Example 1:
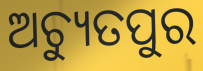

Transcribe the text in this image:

ଅଚ୍ୟୁତପୁର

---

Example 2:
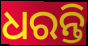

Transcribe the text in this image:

ଧରନ୍ତି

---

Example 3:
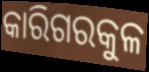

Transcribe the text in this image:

କାରିଗରକୁଳ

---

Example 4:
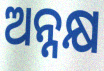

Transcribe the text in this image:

ଅନ୍ନକ୍ଷ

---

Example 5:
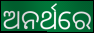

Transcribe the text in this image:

ଅନର୍ଥରେ